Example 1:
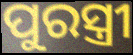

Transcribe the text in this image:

ପୁରସ୍ତ୍ରୀ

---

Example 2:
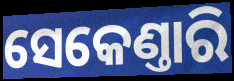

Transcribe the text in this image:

ସେକେଣ୍ତାରି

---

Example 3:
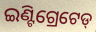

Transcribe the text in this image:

ଇଣ୍ଟିଗ୍ରେଟେଡ୍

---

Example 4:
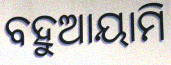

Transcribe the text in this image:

ବହୁଆୟାମି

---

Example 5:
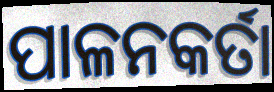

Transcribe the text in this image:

ପାଳନକର୍ତା